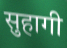
सुहागी